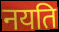
नयति